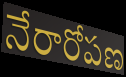
నేరారోపణ